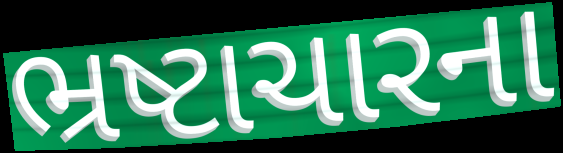
ભ્રષ્ટાચારના